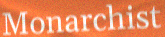
Monarchist